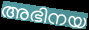
അഭിനയ